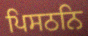
ਪਿਸਠਨਿ